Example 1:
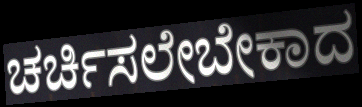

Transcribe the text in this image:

ಚರ್ಚಿಸಲೇಬೇಕಾದ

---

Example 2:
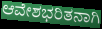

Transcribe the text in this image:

ಆವೇಶಭರಿತನಾಗಿ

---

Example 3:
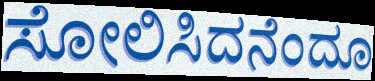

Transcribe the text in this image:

ಸೋಲಿಸಿದನೆಂದೂ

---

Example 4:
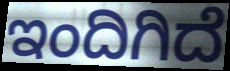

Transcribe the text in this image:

ಇಂದಿಗಿದೆ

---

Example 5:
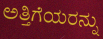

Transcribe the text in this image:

ಅತ್ತಿಗೆಯರನ್ನು